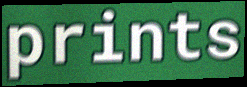
prints